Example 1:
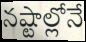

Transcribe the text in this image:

నష్టాల్లోనే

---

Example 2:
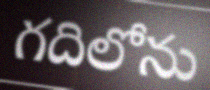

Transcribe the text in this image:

గదిలోను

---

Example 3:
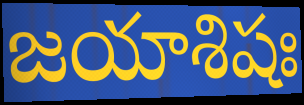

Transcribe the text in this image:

జయాశిషః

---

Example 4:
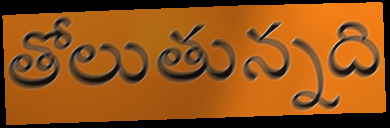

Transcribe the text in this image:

తోలుతున్నది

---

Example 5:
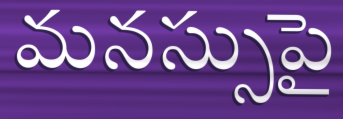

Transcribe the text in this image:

మనస్సుపై